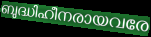
ബുദ്ധിഹീനരായവരേ